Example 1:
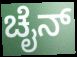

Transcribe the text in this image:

ಚೈನ್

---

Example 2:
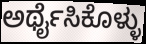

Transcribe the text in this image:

ಅರ್ಥೈಸಿಕೊಳ್ಳು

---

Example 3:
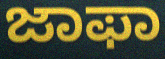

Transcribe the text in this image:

ಜಾಫಾ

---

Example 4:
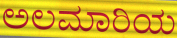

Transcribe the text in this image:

ಅಲಮಾರಿಯ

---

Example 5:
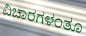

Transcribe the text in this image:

ವಿಚಾರಗಳಂತೂ